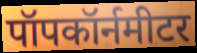
पॉपकॉर्नमीटर